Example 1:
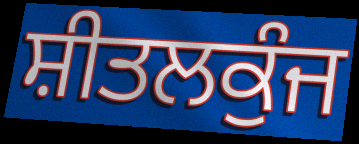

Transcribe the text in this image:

ਸ਼ੀਤਲਕੁੰਜ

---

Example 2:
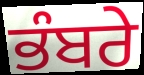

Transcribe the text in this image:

ਭੰਬਰੇ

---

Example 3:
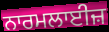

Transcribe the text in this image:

ਨਾਰਮਲਾਈਜ਼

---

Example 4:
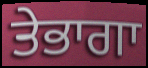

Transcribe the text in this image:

ਤੇਭਾਗਾ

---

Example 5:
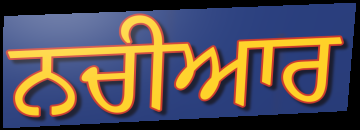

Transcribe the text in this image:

ਨਚੀਆਰ